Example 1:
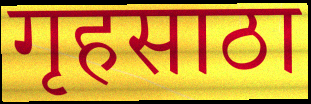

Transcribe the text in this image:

गृहसाठा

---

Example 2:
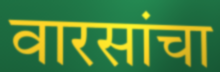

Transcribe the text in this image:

वारसांचा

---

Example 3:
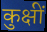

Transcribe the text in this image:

कुक्षीं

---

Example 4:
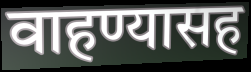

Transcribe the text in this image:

वाहण्यासह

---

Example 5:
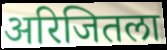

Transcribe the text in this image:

अरिजितला